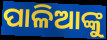
ପାଳିଆଙ୍କୁ